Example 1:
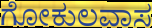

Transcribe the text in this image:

ಗೋಕುಲವಾಸ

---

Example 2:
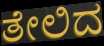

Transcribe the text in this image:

ತೇಲಿದ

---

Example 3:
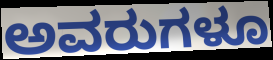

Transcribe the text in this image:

ಅವರುಗಳೂ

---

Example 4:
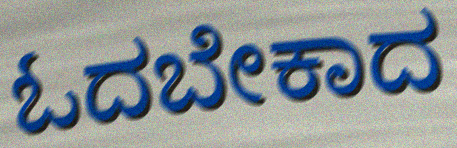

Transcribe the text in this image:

ಓದಬೇಕಾದ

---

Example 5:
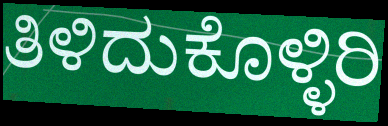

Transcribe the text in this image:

ತಿಳಿದುಕೊಳ್ಳಿರಿ